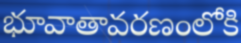
భూవాతావరణంలోకి